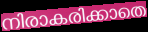
നിരാകരിക്കാതെ